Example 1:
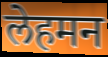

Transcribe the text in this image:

लेहमन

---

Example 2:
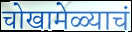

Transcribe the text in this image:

चोखामेळ्याचं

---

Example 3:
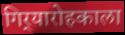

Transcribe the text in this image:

गिर्यारोहकाला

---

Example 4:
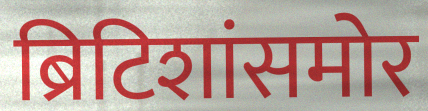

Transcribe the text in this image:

ब्रिटिशांसमोर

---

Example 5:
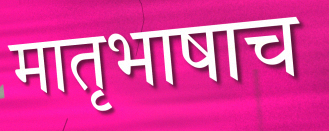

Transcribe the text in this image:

मातृभाषाच